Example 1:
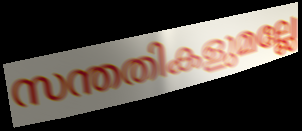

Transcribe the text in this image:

സന്തതികളുമല്ലേ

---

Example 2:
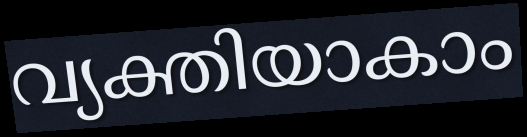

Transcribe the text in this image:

വ്യക്തിയാകാം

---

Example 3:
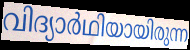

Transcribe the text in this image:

വിദ്യാർഥിയായിരുന്ന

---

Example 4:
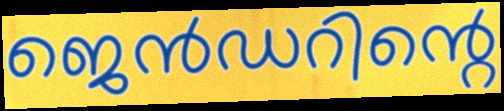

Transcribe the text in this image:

ജെൻഡറിന്റെ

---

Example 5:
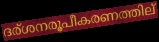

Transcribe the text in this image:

ദര്ശനരൂപീകരണത്തില്